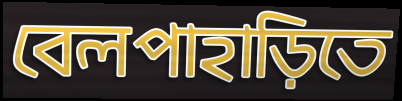
বেলপাহাড়িতে